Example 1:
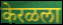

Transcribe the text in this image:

केरळला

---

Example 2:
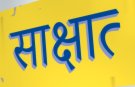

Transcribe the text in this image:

साक्षात्‍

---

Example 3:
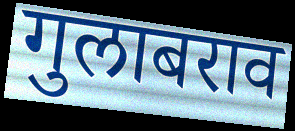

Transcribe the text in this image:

गुलाबराव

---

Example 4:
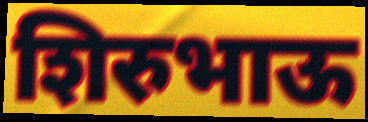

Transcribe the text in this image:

शिरुभाऊ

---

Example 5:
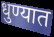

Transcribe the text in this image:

धुण्यात